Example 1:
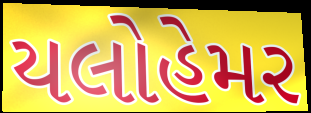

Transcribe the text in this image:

યલોહેમર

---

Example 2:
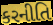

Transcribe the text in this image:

કરનીતિ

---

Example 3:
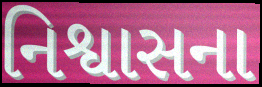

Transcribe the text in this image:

નિશ્વાસના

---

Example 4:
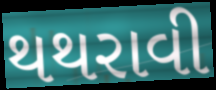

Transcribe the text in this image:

થથરાવી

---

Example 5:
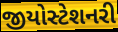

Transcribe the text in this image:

જીયોસ્ટેશનરી